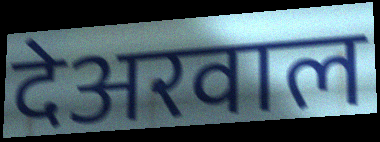
देअरवाल